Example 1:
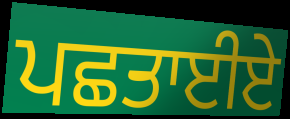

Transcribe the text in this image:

ਪਛਤਾਈਏ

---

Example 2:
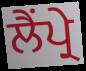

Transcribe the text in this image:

ਲੈਂਪ੍ਰੇ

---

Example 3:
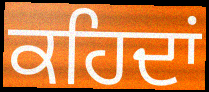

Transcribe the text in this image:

ਕਹਿਦਾਂ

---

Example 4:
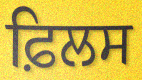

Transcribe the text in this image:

ਫ਼ਿਲਸ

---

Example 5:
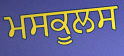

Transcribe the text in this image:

ਮਸਕੂਲਸ